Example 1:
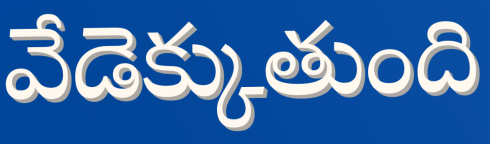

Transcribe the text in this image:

వేడెక్కుతుంది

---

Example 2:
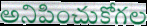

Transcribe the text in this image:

అనిపించుకోగల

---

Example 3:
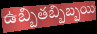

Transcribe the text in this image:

ఉబ్బితబ్బిబ్బయి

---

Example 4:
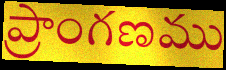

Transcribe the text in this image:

ప్రాంగణము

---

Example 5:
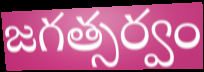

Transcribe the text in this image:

జగత్సర్వం